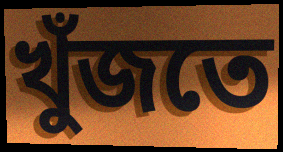
খুঁজতে